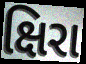
ક્ષિરા